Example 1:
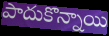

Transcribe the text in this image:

పాదుకొన్నాయి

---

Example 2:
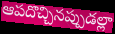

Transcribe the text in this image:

ఆపదొచ్చినప్పుడల్లా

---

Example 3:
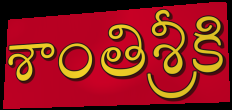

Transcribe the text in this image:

శాంతిశ్రీకి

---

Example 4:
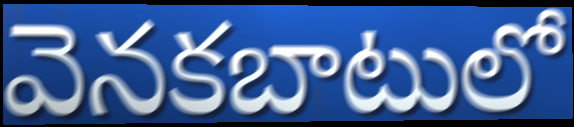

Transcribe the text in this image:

వెనకబాటులో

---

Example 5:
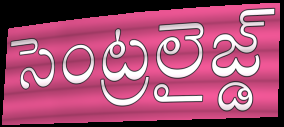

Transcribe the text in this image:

సెంట్రలైజ్డ్